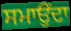
ਸਮਾਉਂਦਾ